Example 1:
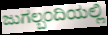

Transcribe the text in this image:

ಜುಗಲ್ಬಂದಿಯಲ್ಲಿ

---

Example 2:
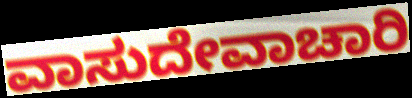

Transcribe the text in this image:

ವಾಸುದೇವಾಚಾರಿ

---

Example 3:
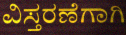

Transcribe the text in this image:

ವಿಸ್ತರಣೆಗಾಗಿ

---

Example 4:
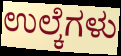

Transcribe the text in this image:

ಉಲ್ಕೆಗಳು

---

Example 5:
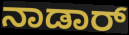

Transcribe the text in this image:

ನಾಡಾರ್